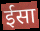
ईसा